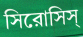
সিরোসিস্